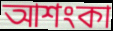
আশংকা